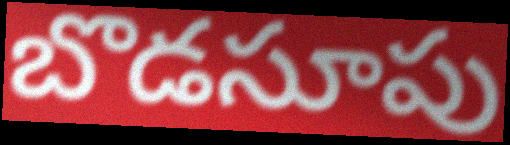
బొడసూపు